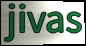
jivas